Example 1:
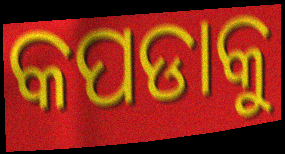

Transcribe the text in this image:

କପଡାକୁ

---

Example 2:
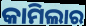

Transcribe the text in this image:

କାମିଲାର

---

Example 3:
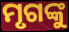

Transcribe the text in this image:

ମୃଗଙ୍କୁ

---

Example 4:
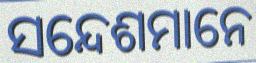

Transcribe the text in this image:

ସନ୍ଦେଶମାନେ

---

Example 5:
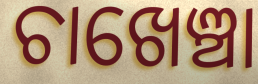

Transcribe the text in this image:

ଚାଖେଞ୍ଚା